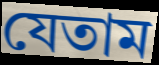
যেতাম